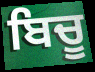
ਬਿਚੂ